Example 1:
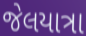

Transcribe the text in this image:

જેલયાત્રા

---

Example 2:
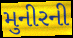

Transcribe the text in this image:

મુનીરની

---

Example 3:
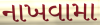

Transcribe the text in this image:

નાખવામા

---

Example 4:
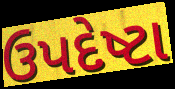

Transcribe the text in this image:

ઉપદેષ્ટા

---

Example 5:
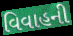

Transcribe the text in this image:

વિવાહની